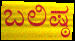
ಬಲಿಷ್ಠ